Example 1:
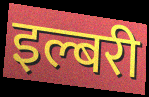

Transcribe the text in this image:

इल्बरी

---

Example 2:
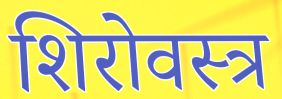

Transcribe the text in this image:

शिरोवस्त्र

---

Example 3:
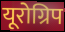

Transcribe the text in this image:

यूरोग्रिप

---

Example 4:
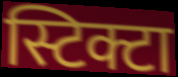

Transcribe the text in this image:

स्टिक्टा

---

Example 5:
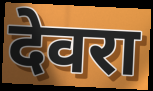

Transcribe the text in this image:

देवरा